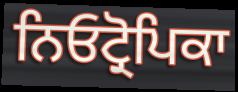
ਨਿਓਟ੍ਰੋਪਿਕਾ